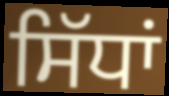
ਸਿੱਧਾਂ